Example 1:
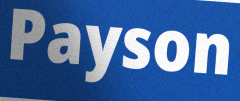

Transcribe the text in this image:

Payson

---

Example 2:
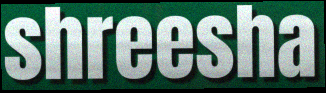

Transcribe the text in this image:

shreesha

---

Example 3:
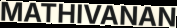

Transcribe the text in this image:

MATHIVANAN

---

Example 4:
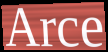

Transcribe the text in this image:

Arce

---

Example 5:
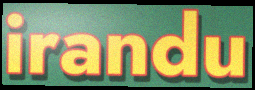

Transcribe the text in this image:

irandu